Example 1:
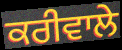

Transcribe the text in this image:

ਕਰੀਵਾਲੇ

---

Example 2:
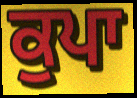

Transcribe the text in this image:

ਕੁਪਾ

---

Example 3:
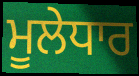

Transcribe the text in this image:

ਮੂਲੇਧਾਰ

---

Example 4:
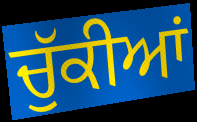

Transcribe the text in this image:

ਚੁੱਕੀਆਂ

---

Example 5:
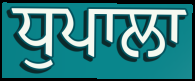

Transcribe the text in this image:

ਧੁਪਾਲਾ